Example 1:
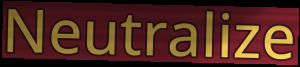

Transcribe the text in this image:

Neutralize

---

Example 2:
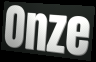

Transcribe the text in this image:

Onze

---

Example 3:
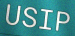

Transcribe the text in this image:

USIP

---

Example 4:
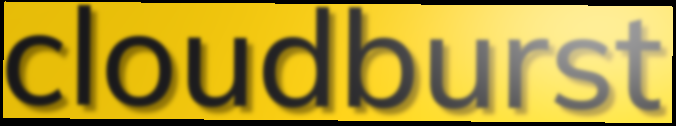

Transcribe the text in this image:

cloudburst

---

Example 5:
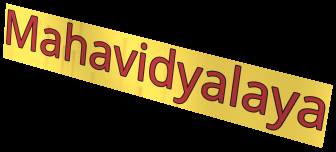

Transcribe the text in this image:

Mahavidyalaya